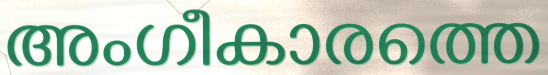
അംഗീകാരത്തെ